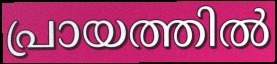
പ്രായത്തിൽ